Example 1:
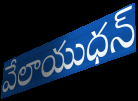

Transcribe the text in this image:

వేలాయుధన్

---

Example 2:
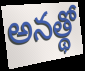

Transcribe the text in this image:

అనత్థో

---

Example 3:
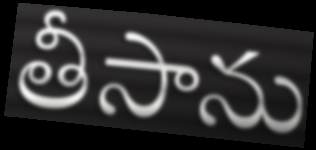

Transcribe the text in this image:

తీసాను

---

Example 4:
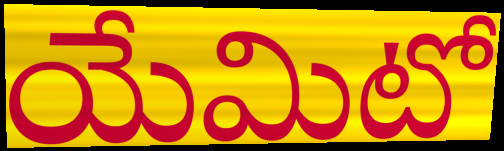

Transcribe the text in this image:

యేమిటో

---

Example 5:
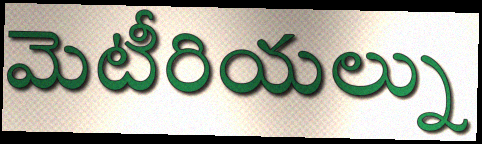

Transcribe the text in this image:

మెటీరియల్ను